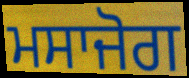
ਮਸਾਜੋਗ